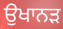
ਉਖਾਨੜ